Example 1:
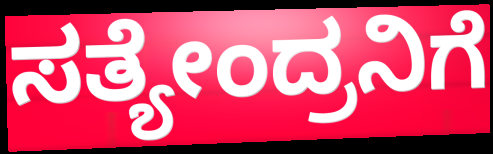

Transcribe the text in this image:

ಸತ್ಯೇಂದ್ರನಿಗೆ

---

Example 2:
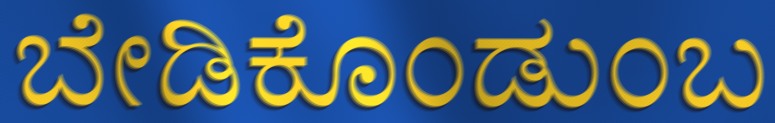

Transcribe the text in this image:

ಬೇಡಿಕೊಂಡುಂಬ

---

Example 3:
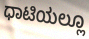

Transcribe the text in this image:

ಧಾಟಿಯಲ್ಲೂ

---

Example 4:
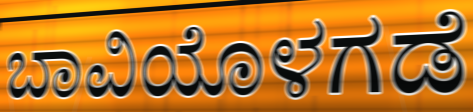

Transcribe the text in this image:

ಬಾವಿಯೊಳಗಡೆ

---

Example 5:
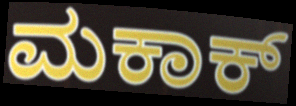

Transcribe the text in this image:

ಮಕಾಕ್